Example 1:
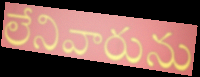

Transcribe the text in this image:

లేనివారును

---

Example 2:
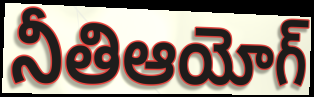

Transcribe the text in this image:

నీతిఆయోగ్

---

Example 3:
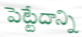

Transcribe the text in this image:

పెట్టేదాన్ని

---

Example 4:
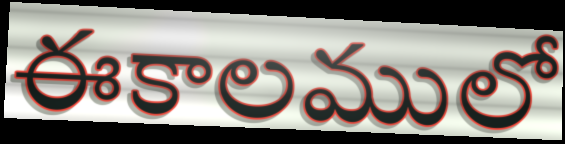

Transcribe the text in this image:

ఈకాలములో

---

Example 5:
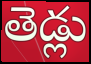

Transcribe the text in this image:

తెడ్లు